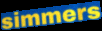
simmers